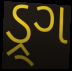
ડ્ર્ગ